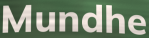
Mundhe